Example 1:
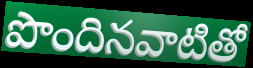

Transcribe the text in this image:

పొందినవాటితో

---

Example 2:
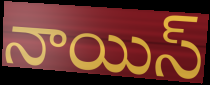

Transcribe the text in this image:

నాయిస్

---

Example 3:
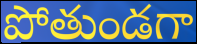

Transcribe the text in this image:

పోతుండగా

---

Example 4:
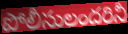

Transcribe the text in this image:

పోలీసులందరినీ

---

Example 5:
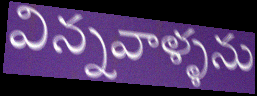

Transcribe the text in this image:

విన్నవాళ్ళను